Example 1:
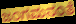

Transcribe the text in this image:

ಜಂಗಮನಂತೆ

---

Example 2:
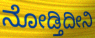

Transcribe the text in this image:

ನೋಡ್ತಿದೀನಿ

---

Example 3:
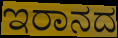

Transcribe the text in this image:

ಇರಾನದ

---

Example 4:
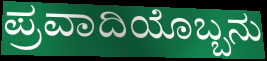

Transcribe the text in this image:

ಪ್ರವಾದಿಯೊಬ್ಬನು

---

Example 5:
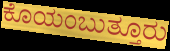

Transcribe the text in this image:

ಕೊಯಂಬುತ್ತೂರು